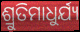
ଶ୍ରୁତିମାଧୁର୍ଯ୍ୟ